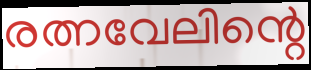
രത്നവേലിന്റെ